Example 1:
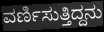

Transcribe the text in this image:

ವರ್ಣಿಸುತ್ತಿದ್ದನು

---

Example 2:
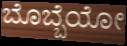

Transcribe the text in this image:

ಬೊಬ್ಬೆಯೋ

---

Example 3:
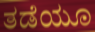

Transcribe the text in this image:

ತಡೆಯೂ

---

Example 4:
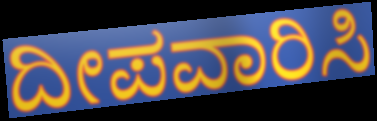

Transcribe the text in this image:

ದೀಪವಾರಿಸಿ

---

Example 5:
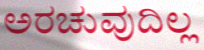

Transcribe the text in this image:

ಅರಚುವುದಿಲ್ಲ